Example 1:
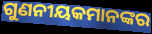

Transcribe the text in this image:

ଗୁଣନୀୟକମାନଙ୍କର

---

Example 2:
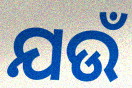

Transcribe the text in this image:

ଯଉଁ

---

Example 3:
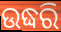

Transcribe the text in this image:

ଉଦ୍ଧରି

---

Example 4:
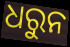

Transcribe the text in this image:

ଧରୁନ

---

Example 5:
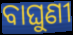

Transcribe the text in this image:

ବାଘୁଣୀ